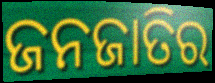
ଜନଜାତିର